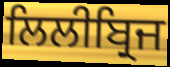
ਲਿਲੀਬ੍ਰਿਜ